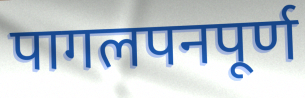
पागलपनपूर्ण